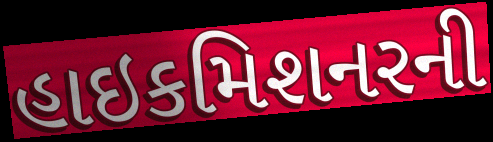
હાઇકમિશનરની